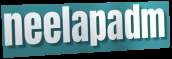
neelapadm